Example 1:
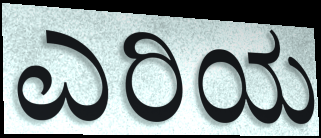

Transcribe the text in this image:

ಎರಿಯ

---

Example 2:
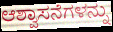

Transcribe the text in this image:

ಆಶ್ವಾಸನೆಗಳನ್ನು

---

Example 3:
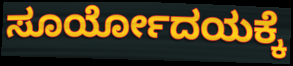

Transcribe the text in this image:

ಸೂರ್ಯೋದಯಕ್ಕೆ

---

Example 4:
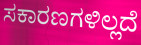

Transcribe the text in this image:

ಸಕಾರಣಗಳಿಲ್ಲದೆ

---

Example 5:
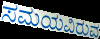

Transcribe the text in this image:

ಸಮಯವಿರುವ